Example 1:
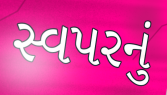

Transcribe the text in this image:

સ્વપરનું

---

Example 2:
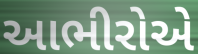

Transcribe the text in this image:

આભીરોએ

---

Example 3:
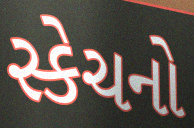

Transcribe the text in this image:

સ્કેચનો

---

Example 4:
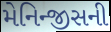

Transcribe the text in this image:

મેનિન્જીસની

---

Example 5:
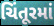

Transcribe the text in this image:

ચિંતૂરમાં